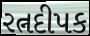
રત્નદીપક